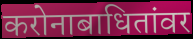
करोनाबाधितांवर